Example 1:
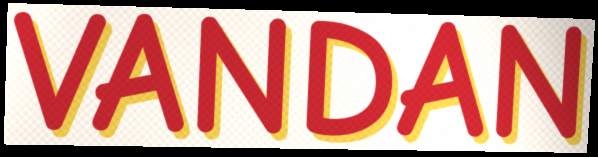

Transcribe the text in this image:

VANDAN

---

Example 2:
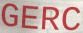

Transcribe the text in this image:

GERC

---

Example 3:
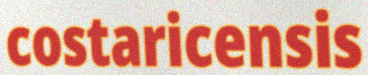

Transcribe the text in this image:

costaricensis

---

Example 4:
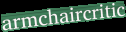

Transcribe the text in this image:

armchaircritic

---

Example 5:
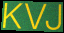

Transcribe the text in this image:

KVJ